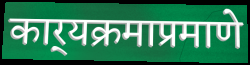
कार्यक्रमाप्रमाणे